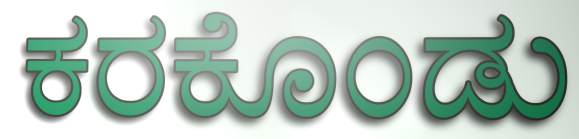
ಕರಕೊಂಡು